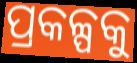
ପ୍ରକଳ୍ପକୁ